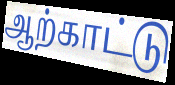
ஆற்காட்டு